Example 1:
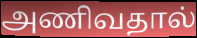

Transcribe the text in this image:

அணிவதால்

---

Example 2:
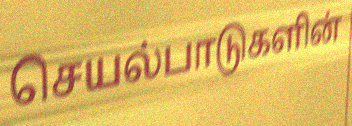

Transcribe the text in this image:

செயல்பாடுகளின்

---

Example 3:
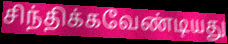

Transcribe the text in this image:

சிந்திக்கவேண்டியது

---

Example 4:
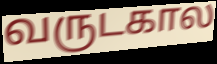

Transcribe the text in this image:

வருடகால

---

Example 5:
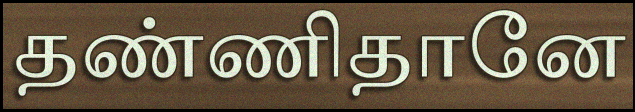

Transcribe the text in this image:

தண்ணிதானே